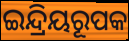
ଇନ୍ଦ୍ରିୟରୂପକ